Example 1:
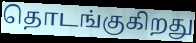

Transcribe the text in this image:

தொடங்குகிறது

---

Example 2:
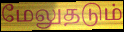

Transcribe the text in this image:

மேலுதடும்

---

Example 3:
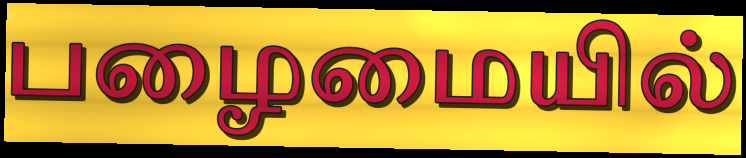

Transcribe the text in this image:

பழைமையில்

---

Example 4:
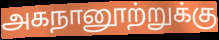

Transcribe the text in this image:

அகநானூற்றுக்கு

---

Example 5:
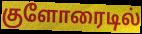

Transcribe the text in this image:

குளோரைடில்